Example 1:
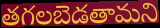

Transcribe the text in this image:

తగలబెడతామని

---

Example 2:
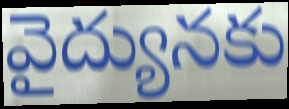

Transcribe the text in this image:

వైద్యునకు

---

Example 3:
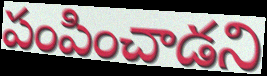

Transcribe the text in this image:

పంపించాడని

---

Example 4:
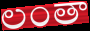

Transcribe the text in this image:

లంతా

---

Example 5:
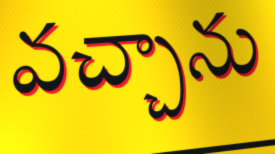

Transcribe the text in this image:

వచ్చాను